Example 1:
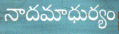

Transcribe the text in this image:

నాదమాధుర్యం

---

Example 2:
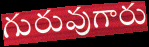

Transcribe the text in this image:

గురువుగారు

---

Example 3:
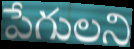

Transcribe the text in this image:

పేగులని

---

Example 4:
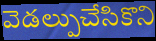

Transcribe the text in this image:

వెడల్పుచేసికొని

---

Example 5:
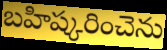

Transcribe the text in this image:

బహిష్కరించెను